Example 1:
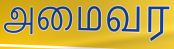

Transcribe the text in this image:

அமைவர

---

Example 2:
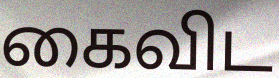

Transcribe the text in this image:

கைவிட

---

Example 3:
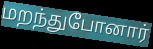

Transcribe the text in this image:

மறந்துபோனார்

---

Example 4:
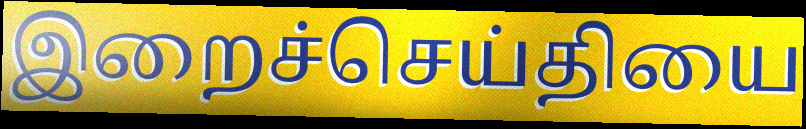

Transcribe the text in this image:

இறைச்செய்தியை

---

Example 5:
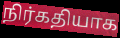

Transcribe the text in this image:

நிர்கதியாக